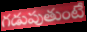
గడుపుతుంటే